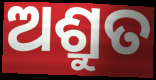
ଅଶ୍ରୁତ